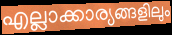
എല്ലാക്കാര്യങ്ങളിലും